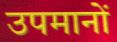
उपमानों